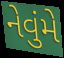
નેવુંમે